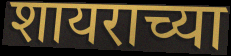
शायराच्या